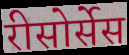
रीसोर्सेस